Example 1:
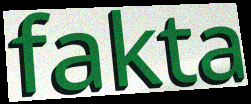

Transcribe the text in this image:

fakta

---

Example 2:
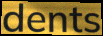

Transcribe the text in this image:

dents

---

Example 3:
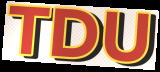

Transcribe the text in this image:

TDU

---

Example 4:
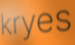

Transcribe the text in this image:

kryes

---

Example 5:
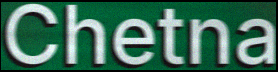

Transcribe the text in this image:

Chetna